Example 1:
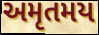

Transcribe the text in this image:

અમૃતમય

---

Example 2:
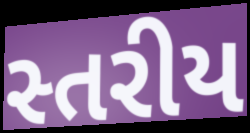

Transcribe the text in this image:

સ્તરીય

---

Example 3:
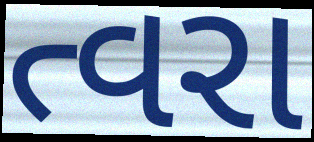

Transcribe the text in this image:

ત્વરા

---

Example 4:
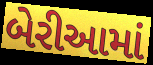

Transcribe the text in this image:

બેરીઆમાં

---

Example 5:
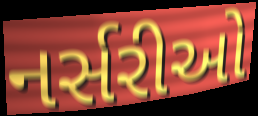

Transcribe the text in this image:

નર્સરીઓ